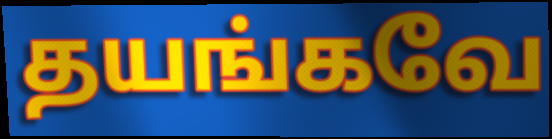
தயங்கவே